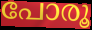
പോരൂ